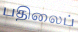
பதிலைப்